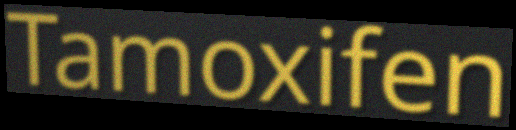
Tamoxifen